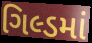
ગિલ્ડમાં